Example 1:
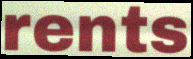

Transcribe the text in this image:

rents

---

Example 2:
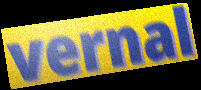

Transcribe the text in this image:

vernal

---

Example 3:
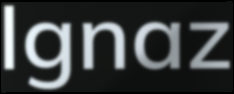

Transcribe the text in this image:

Ignaz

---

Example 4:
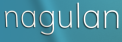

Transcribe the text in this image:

nagulan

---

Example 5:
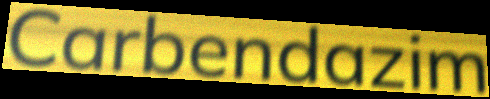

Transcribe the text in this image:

Carbendazim